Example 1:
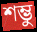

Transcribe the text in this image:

শম্ভু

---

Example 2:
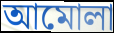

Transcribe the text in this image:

আমোলা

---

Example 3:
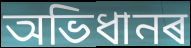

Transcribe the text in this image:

অভিধানৰ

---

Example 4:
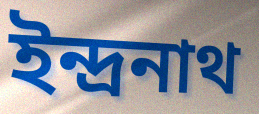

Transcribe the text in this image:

ইন্দ্ৰনাথ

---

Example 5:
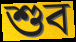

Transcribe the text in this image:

শুব